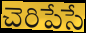
చెరిపేసే